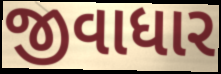
જીવાધાર